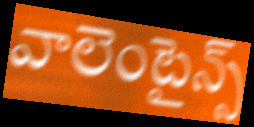
వాలెంటైన్స్